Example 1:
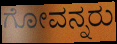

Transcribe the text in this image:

ಗೋವನ್ನರು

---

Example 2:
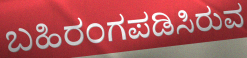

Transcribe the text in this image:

ಬಹಿರಂಗಪಡಿಸಿರುವ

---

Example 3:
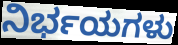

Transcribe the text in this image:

ನಿರ್ಭಯಗಳು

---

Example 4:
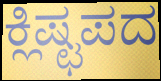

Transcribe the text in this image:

ಕ್ಲಿಷ್ಟಪದ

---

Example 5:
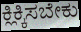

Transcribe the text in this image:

ಕ್ಲಿಕ್ಕಿಸಬೇಕು